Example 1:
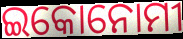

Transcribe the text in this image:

ଇକୋନୋମୀ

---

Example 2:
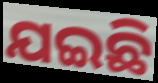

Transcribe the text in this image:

ଯଇଛି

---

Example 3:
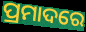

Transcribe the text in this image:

ପ୍ରମାଦରେ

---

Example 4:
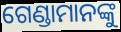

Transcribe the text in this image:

ଗେଣ୍ଡାମାନଙ୍କୁ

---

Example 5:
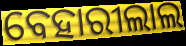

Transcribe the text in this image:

ବେହାରୀଲାଲ